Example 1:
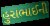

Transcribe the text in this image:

હુરાભાઈની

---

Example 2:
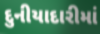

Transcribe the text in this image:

દુનીયાદારીમાં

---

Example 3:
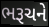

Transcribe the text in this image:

ભરૂચને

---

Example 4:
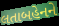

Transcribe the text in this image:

લતાબહેનને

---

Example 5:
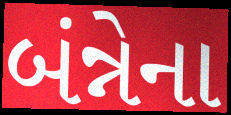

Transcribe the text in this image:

બંન્નેના